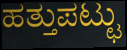
ಹತ್ತುಪಟ್ಟು